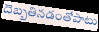
దెబ్బతినడంతోపాటు